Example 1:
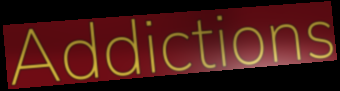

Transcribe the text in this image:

Addictions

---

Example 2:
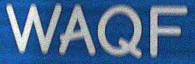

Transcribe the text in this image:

WAQF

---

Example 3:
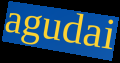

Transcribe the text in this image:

agudai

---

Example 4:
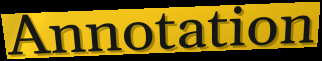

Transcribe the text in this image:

Annotation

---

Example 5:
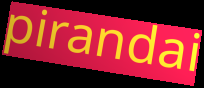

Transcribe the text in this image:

pirandai